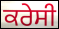
ਕਰੇਸੀ